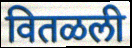
वितळली